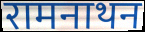
रामनाथन